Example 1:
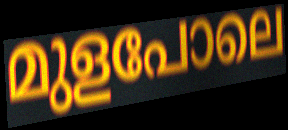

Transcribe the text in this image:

മുളപോലെ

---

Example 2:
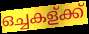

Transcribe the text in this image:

ഒച്ചകള്ക്ക്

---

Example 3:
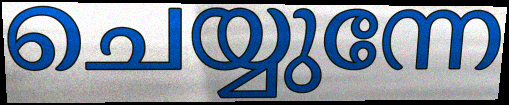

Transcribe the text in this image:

ചെയ്യുന്നേ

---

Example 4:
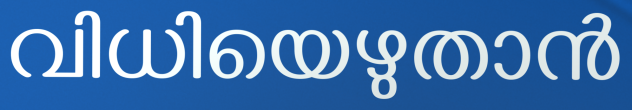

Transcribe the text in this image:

വിധിയെഴുതാൻ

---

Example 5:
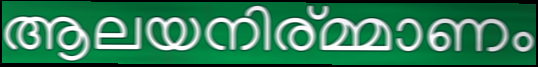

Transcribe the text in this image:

ആലയനിര്മ്മാണം